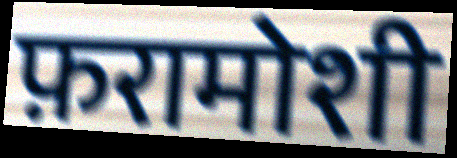
फ़रामोशी